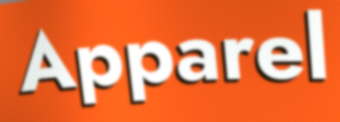
Apparel